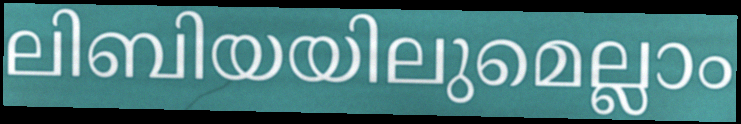
ലിബിയയിലുമെല്ലാം